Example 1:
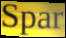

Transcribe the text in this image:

Spar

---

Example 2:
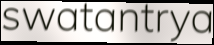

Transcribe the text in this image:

swatantrya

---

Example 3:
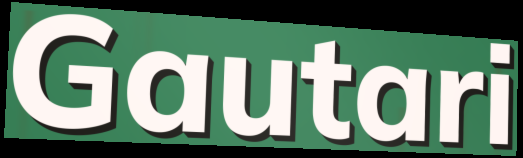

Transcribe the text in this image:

Gautari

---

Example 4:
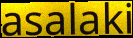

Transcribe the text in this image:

asalaki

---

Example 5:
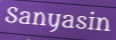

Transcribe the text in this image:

Sanyasin